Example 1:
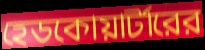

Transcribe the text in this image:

হেডকোয়ার্টারের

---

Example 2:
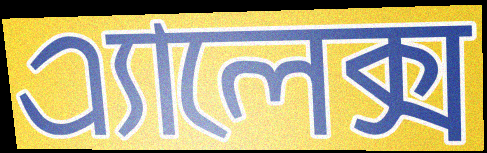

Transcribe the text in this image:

এ্যালেক্স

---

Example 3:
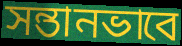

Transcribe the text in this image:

সন্তানভাবে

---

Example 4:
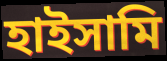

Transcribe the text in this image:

হাইসামি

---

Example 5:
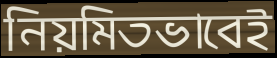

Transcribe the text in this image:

নিয়মিতভাবেই